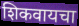
शिकवायचा